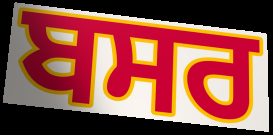
ਬਸਰ